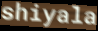
shiyala